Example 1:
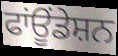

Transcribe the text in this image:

ਫਾਂਊਂਡੇਸ਼ਨ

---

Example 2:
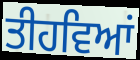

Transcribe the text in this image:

ਤੀਹਵਿਆਂ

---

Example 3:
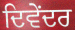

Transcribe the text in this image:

ਦਿਵੇਂਦਰ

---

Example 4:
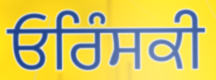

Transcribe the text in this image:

ਓਰਿੰਸਕੀ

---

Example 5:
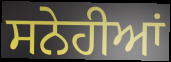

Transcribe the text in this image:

ਸਨੇਹੀਆਂ